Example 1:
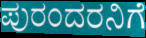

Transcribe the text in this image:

ಪುರಂದರನಿಗೆ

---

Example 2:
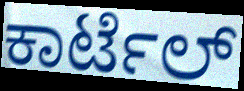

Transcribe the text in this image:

ಕಾರ್ಟೆಲ್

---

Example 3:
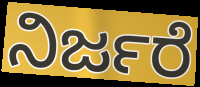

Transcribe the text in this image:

ನಿರ್ಜರೆ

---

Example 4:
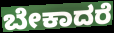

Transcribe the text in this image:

ಬೇಕಾದರೆ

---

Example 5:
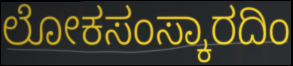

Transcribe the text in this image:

ಲೋಕಸಂಸ್ಕಾರದಿಂ